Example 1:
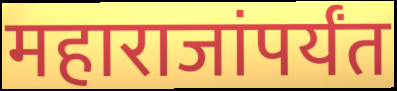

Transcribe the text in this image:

महाराजांपर्यंत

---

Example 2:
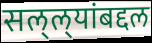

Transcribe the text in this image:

सल्ल्यांबद्दल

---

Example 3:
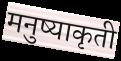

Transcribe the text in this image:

मनुष्याकृती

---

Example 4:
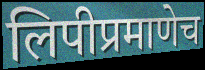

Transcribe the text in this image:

लिपीप्रमाणेच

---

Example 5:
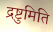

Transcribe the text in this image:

द्रष्टुमिति